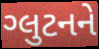
ગ્લુટનને